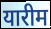
यारीम